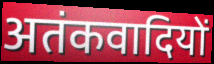
अतंकवादियों